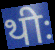
थीः